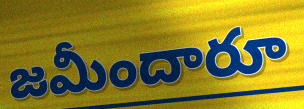
జమీందారూ